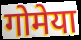
गोमेया